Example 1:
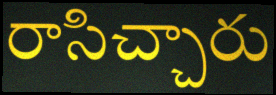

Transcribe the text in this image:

రాసిచ్చారు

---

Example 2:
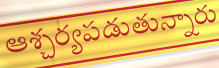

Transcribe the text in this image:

ఆశ్చర్యపడుతున్నారు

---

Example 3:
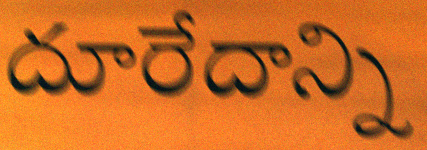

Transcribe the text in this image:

దూరేదాన్ని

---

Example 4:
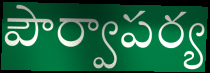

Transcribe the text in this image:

పౌర్వాపర్య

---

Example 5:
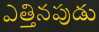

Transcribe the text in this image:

ఎత్తినపుడు